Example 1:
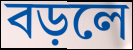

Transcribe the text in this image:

বড়লে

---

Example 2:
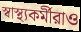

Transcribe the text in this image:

স্বাস্থ্যকর্মীরাও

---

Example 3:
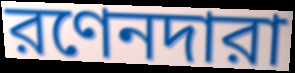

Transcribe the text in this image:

রণেনদারা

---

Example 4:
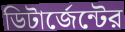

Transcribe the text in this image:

ডিটার্জেন্টের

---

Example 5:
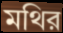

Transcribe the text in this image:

মথির